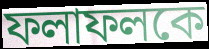
ফলাফলকে